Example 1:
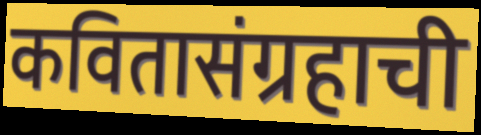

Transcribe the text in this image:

कवितासंग्रहाची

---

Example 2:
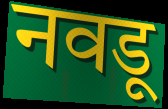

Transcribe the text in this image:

नवडू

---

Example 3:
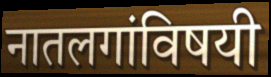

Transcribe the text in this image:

नातलगांविषयी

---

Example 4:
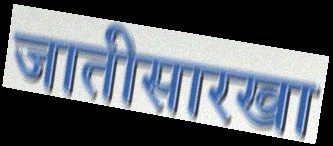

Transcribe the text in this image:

जातीसारखा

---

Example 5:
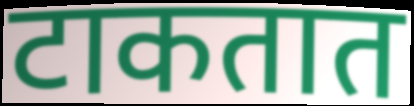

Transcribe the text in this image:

टाकतात